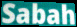
Sabah